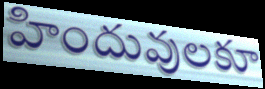
హిందువులకూ